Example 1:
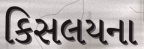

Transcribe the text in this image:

કિસલયના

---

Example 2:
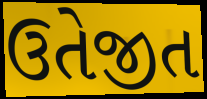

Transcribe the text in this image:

ઉતેજીત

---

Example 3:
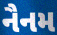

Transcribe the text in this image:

નૈનમ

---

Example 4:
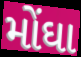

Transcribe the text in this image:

મોંઘા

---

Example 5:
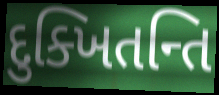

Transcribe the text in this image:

દુક્ખિતન્તિ